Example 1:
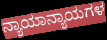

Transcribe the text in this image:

ನ್ಯಾಯಾನ್ಯಾಯಗಳ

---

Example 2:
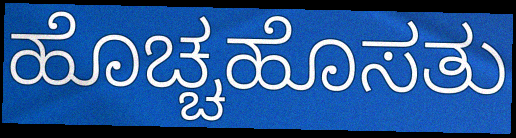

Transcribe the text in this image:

ಹೊಚ್ಚಹೊಸತು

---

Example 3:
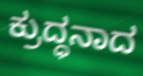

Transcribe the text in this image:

ಕ್ರುದ್ಧನಾದ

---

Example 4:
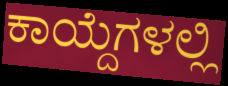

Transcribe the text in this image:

ಕಾಯ್ದೆಗಳಲ್ಲಿ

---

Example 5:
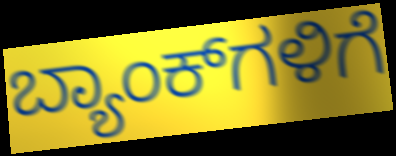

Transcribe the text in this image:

ಬ್ಯಾಂಕ್‌ಗಳಿಗೆ